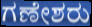
ಗಣೇಶರು